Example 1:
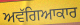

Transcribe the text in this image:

ਅਵੱਗਿਆਕਾਰ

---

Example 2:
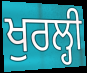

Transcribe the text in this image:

ਖੁਰਲ੍ਹੀ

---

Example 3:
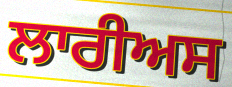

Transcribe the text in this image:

ਲਾਰੀਅਸ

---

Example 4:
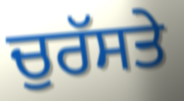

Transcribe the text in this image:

ਚੁਰੱਸਤੇ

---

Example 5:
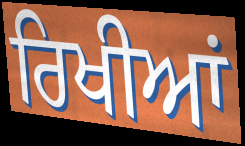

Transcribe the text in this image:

ਰਿਖੀਆਂ